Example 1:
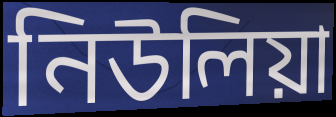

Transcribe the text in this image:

নিউলিয়া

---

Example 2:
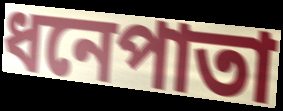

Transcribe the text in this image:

ধনেপাতা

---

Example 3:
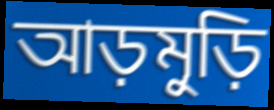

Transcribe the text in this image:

আড়মুড়ি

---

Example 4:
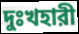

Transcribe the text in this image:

দুঃখহারী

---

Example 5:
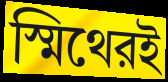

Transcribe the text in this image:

স্মিথেরই